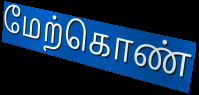
மேற்கொண்